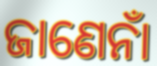
ଜାଣେନାଁ